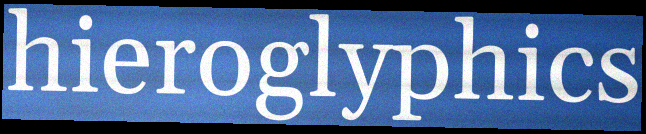
hieroglyphics